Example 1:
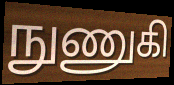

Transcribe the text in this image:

நுணுகி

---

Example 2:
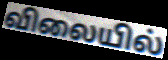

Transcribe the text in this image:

விலையில்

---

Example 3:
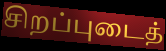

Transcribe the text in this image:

சிறப்புடைத்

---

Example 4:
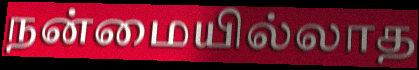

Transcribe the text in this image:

நன்மையில்லாத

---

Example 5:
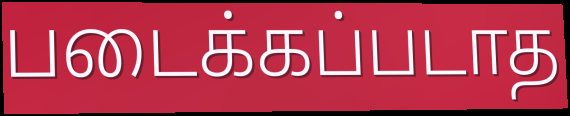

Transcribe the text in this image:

படைக்கப்படாத